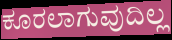
ಕೂರಲಾಗುವುದಿಲ್ಲ